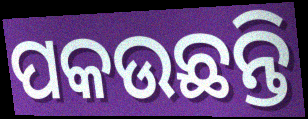
ପକଉଛନ୍ତି